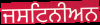
ਜਸਟਿਨੀਅਨ